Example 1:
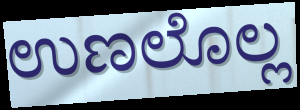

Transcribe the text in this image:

ಉಣಲೊಲ್ಲ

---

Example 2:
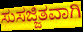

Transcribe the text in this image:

ಸುಸಜ್ಜಿತವಾಗಿ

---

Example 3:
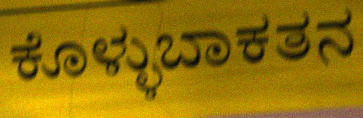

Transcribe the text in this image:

ಕೊಳ್ಳುಬಾಕತನ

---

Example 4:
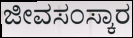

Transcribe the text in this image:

ಜೀವಸಂಸ್ಕಾರ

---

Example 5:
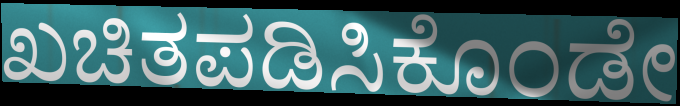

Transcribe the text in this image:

ಖಚಿತಪಡಿಸಿಕೊಂಡೇ